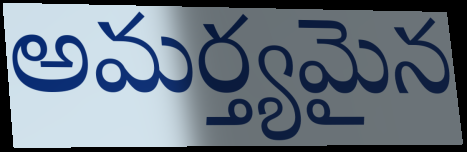
అమర్త్యమైన